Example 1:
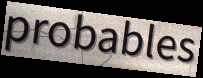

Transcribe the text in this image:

probables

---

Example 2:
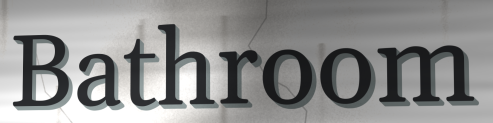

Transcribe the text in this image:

Bathroom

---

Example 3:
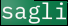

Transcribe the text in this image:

sagli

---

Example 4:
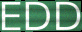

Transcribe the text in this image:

EDD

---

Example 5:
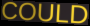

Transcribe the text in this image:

COULD